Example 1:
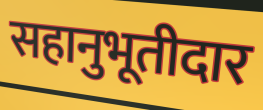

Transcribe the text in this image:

सहानुभूतीदार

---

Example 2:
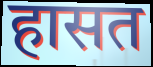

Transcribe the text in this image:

हासत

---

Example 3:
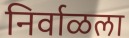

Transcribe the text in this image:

निर्वाळला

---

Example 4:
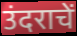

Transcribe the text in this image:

उंदराचें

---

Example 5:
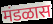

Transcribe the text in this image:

मंडळास